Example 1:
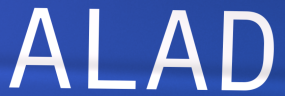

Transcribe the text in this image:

ALAD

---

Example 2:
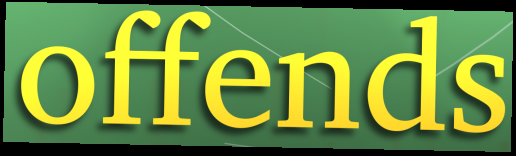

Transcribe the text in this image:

offends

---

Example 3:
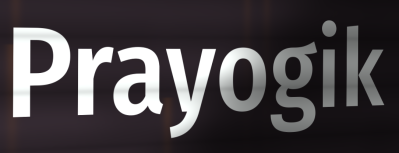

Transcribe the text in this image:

Prayogik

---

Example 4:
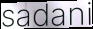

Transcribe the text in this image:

sadani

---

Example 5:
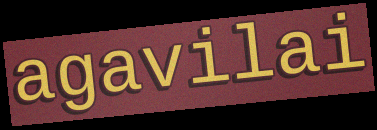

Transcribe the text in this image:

agavilai